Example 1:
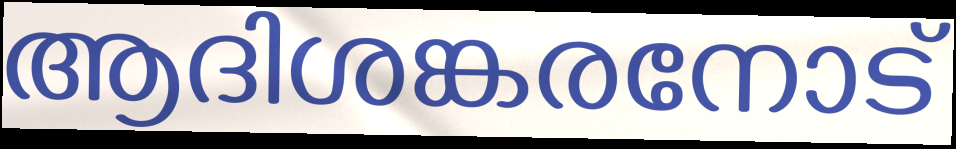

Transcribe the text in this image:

ആദിശങ്കരനോട്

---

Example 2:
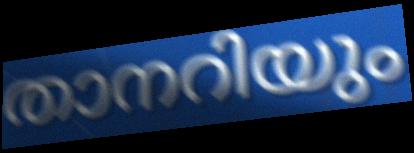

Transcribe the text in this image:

താനറിയും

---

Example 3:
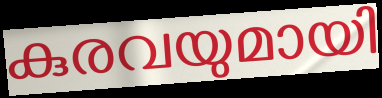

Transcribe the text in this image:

കുരവയുമായി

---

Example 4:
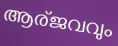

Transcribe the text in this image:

ആര്ജവവും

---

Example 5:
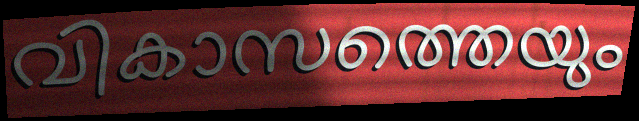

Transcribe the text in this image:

വികാസത്തെയും